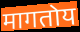
मागतोय